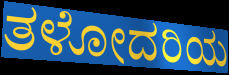
ತಳೋದರಿಯ